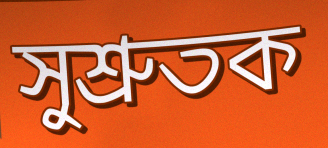
সুশ্ৰুতক